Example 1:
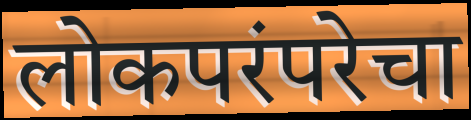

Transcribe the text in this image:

लोकपरंपरेचा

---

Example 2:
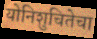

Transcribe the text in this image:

योनिशुचितेचा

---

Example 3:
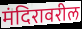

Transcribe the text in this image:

मंदिरावरील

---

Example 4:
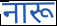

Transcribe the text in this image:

नारू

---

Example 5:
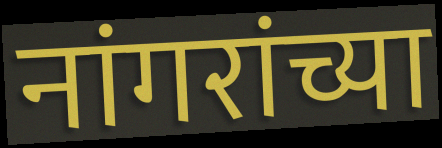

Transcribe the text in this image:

नांगरांच्या